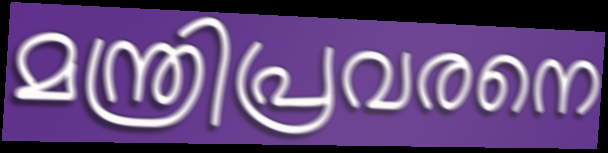
മന്ത്രിപ്രവരനെ